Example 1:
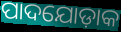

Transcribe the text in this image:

ପାଦଯୋଡ଼ାକ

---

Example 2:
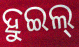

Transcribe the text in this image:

ହୁଇଲ୍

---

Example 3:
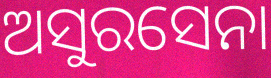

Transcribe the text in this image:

ଅସୁରସେନା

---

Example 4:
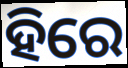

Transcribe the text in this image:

ହିରେ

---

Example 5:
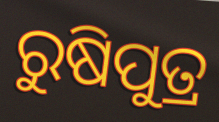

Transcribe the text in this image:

ରୁଷିପୁତ୍ର